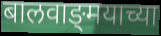
बालवाङ्‌मयाच्या